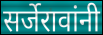
सर्जेरावांनी